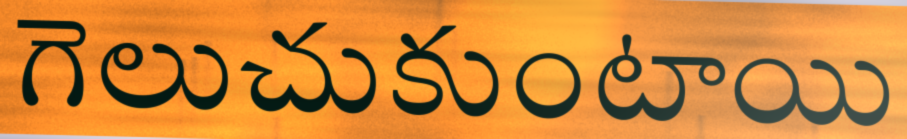
గెలుచుకుంటాయి